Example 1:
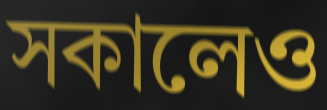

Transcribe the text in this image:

সকালেও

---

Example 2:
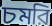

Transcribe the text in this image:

চমরি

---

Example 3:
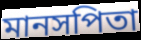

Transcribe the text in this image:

মানসপিতা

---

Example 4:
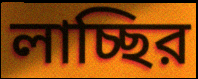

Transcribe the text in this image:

লাচ্ছির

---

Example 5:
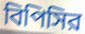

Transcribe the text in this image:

বিপিসির